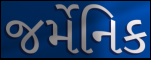
જર્મેનિક